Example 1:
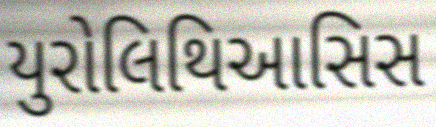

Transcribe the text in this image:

યુરોલિથિઆસિસ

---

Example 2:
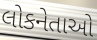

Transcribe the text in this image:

લોકનેતાઓ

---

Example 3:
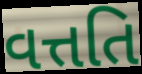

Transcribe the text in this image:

વત્તતિ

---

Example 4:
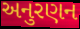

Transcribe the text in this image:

અનુરણન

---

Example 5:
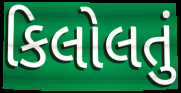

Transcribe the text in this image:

કિલોલતું